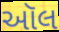
ઑલ